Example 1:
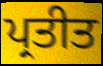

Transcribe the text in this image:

ਪ੍ਰਤੀਤ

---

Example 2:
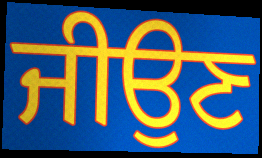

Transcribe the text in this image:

ਜੀਉਣ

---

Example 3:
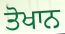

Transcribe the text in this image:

ਤੋਖਾਨ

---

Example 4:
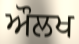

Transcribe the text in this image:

ਔਲਖ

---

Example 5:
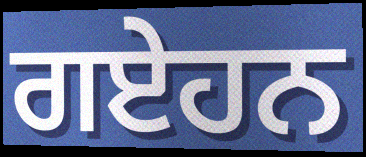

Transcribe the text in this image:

ਗਏਹਨ